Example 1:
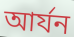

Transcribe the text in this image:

আর্যন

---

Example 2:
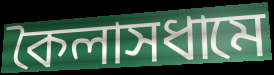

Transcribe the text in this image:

কৈলাসধামে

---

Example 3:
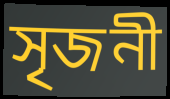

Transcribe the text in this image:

সৃজনী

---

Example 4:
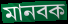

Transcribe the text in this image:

মানবক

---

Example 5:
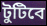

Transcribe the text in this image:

টুটিবে